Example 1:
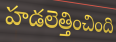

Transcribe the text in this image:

హడలెత్తించింది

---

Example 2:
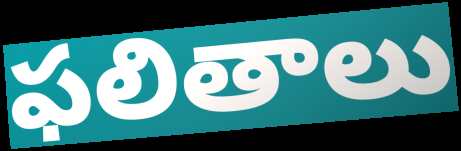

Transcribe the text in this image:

ఫలితాలు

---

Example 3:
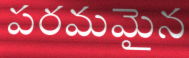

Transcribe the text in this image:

పరమమైన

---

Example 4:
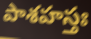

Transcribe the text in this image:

పాశహస్తః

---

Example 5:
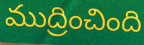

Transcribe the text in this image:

ముద్రించింది